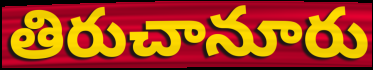
తిరుచానూరు